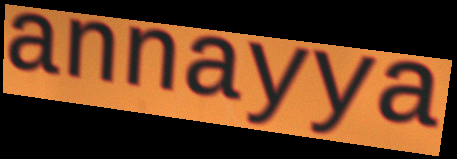
annayya